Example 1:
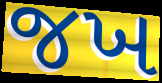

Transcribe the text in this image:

જખ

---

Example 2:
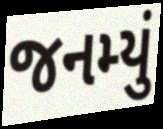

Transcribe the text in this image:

જનમ્યું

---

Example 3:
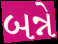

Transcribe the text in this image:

બન્ને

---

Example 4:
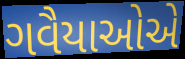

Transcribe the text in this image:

ગવૈયાઓએ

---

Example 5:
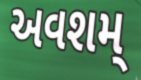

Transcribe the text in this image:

અવશમ્